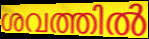
ശവത്തിൽ